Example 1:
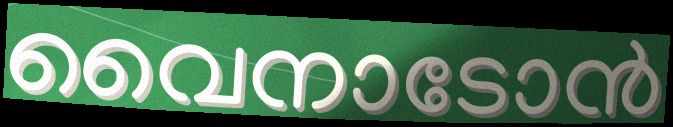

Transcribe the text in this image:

വൈനാടോൻ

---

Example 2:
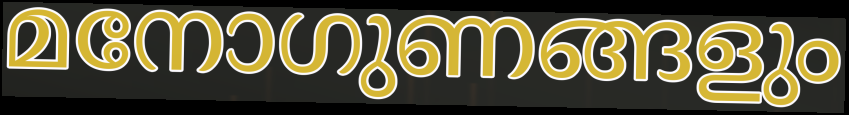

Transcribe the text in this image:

മനോഗുണങ്ങളും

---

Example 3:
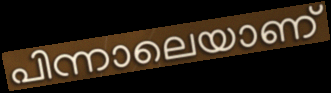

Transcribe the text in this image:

പിന്നാലെയാണ്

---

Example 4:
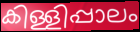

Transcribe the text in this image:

കിള്ളിപ്പാലം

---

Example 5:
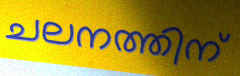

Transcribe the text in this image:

ചലനത്തിന്